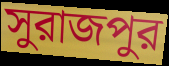
সুরাজপুর